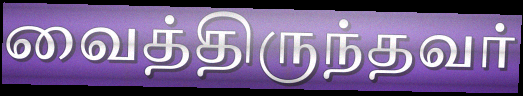
வைத்திருந்தவர்